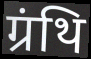
ग्रंथि